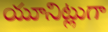
యూనిట్లుగా